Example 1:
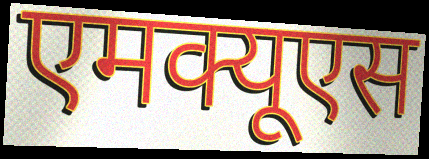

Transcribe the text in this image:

एमक्यूएस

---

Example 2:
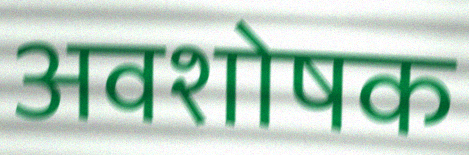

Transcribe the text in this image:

अवशोषक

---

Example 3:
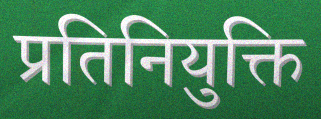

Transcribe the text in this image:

प्रतिनियुक्ति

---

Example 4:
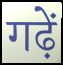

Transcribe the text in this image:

गढ़ें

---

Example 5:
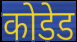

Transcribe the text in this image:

कोडेड